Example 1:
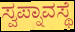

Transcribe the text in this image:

ಸ್ವಪ್ನಾವಸ್ಥೆ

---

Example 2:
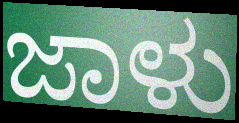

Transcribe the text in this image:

ಜಾಳು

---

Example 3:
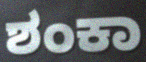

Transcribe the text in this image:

ಶಂಕಾ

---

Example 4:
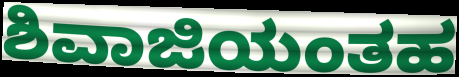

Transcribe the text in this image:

ಶಿವಾಜಿಯಂತಹ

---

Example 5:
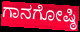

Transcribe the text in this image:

ಗಾನಗೋಷ್ಠಿ